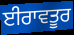
ਈਰਾਵਤੂਰ